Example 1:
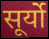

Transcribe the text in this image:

सूर्यो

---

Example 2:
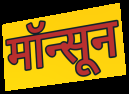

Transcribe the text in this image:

मॉन्सून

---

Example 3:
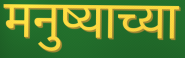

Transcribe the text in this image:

मनुष्याच्या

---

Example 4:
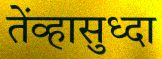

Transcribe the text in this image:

तेंव्हासुध्दा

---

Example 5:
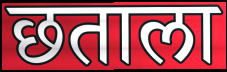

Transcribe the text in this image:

छताला